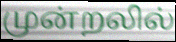
முன்றலில்